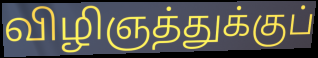
விழிஞத்துக்குப்